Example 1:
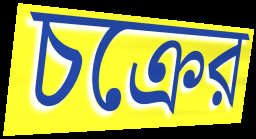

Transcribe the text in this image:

চক্রের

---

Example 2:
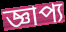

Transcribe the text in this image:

জ্ঞাপ্য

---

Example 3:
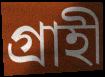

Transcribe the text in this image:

গ্রাহী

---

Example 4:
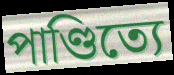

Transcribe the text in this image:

পাণ্ডিত্যে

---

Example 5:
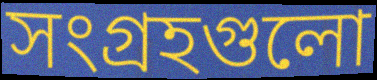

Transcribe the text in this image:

সংগ্রহগুলো